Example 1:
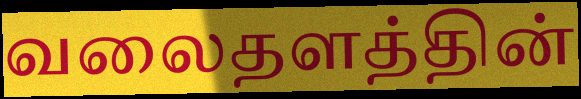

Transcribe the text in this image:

வலைதளத்தின்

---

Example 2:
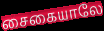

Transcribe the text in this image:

சைகையாலே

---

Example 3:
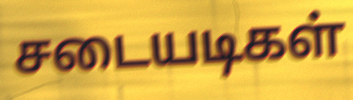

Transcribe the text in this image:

சடையடிகள்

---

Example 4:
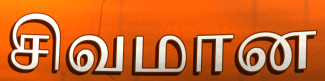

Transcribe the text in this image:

சிவமான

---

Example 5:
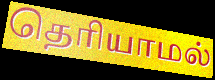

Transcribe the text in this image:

தெரியாமல்